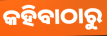
କହିବାଠାରୁ